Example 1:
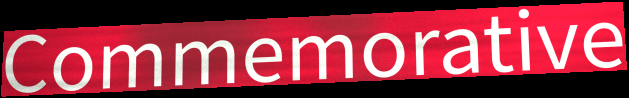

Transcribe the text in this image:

Commemorative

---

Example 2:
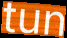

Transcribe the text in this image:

tun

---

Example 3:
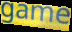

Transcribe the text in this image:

game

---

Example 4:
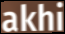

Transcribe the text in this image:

akhi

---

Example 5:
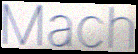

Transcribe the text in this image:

Mach